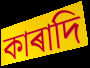
কাৰাদি